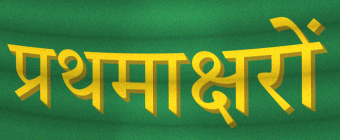
प्रथमाक्षरों